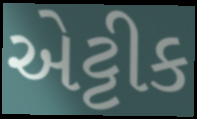
એટ્ટીક